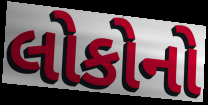
લોકોનો